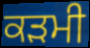
ਕੜਮੀ